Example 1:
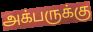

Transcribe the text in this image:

அக்பருக்கு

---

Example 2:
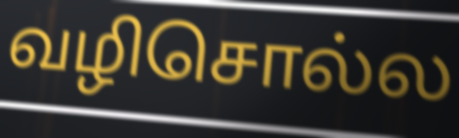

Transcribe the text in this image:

வழிசொல்ல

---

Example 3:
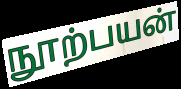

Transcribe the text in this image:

நூற்பயன்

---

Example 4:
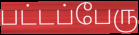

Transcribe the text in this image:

பட்டப்பேரு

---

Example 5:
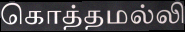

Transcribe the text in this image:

கொத்தமல்லி